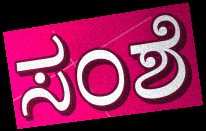
ಸಂಶೆ